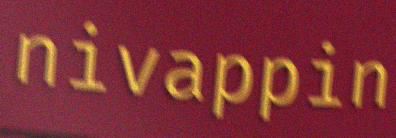
nivappin